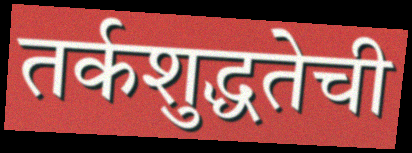
तर्कशुद्धतेची